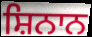
ਸ਼ਿਨਾਨ